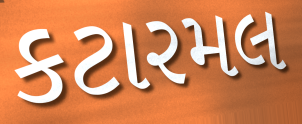
કટારમલ